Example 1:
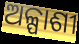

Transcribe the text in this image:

ଅଳ୍ପାଶୀ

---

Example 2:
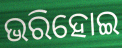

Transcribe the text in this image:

ଭରିହୋଇ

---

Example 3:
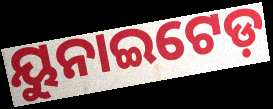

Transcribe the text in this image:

ୟୁନାଇଟେଡ଼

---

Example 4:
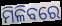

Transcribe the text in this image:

ମିଳିବରେ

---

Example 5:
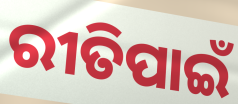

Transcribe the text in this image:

ରୀତିପାଇଁ